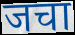
जचा